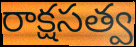
రాక్షసత్వ